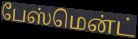
பேஸ்மென்ட்